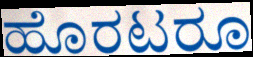
ಹೊರಟರೂ